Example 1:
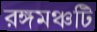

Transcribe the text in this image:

রঙ্গমঞ্চটি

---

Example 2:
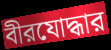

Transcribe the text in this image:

বীরযোদ্ধার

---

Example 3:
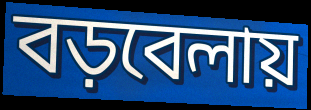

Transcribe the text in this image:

বড়বেলায়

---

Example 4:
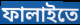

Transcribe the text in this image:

ফালাইতে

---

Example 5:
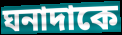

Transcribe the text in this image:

ঘনাদাকে